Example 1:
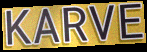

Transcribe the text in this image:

KARVE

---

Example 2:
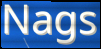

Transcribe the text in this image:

Nags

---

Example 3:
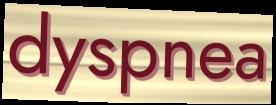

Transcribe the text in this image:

dyspnea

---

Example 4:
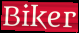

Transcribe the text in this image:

Biker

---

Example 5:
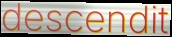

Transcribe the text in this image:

descendit